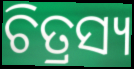
ଚିତ୍ରସ୍ୟ